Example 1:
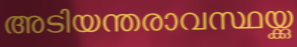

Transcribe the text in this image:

അടിയന്തരാവസ്ഥയ്ക്കു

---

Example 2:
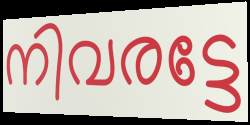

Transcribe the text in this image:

നിവരട്ടേ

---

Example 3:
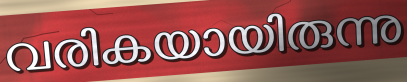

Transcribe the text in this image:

വരികയായിരുന്നു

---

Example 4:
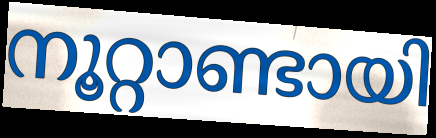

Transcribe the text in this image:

നൂറ്റാണ്ടായി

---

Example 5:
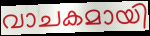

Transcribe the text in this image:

വാചകമായി